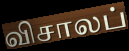
விசாலப்